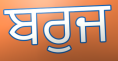
ਬਰੁਜ